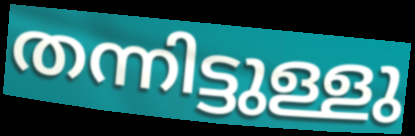
തന്നിട്ടുള്ളു